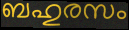
ബഹുരസം